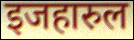
इजहारुल